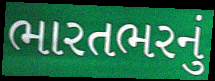
ભારતભરનું